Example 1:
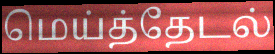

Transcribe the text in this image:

மெய்த்தேடல்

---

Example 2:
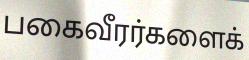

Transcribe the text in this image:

பகைவீரர்களைக்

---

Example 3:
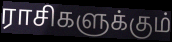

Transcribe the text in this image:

ராசிகளுக்கும்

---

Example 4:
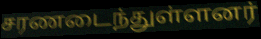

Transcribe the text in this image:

சரணடைந்துள்ளனர்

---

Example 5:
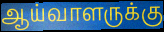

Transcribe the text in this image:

ஆய்வாளருக்கு